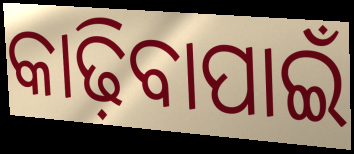
କାଢ଼ିବାପାଇଁ